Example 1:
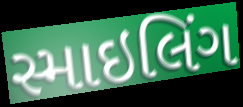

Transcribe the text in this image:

સ્માઇલિંગ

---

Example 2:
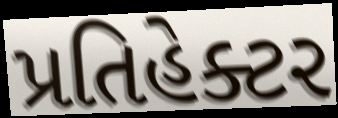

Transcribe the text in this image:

પ્રતિહેક્ટર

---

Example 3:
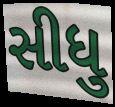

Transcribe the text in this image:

સીધુ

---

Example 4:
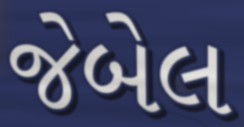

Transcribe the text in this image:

જેબેલ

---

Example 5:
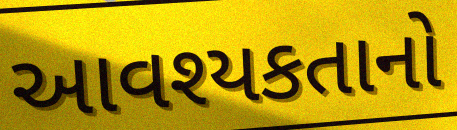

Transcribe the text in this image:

આવશ્યકતાનો